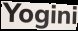
Yogini